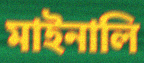
মাইনালি